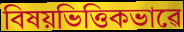
বিষয়ভিত্তিকভাৱে